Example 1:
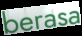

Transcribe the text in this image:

berasa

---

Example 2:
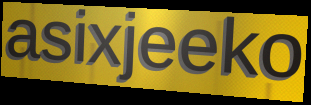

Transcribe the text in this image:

asixjeeko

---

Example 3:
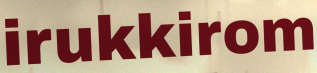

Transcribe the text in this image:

irukkirom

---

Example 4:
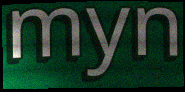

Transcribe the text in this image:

myn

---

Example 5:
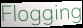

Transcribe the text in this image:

Flogging